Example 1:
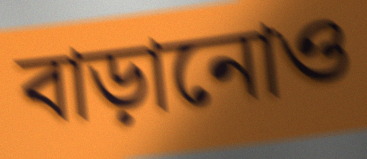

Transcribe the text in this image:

বাড়ানোও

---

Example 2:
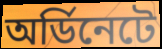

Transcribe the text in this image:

অর্ডিনেটে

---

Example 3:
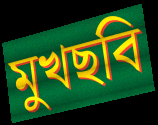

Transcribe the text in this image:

মুখছবি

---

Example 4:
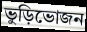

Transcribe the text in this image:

ভুড়িভোজন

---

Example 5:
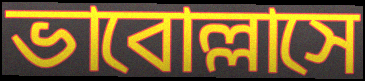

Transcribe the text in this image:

ভাবোল্লাসে